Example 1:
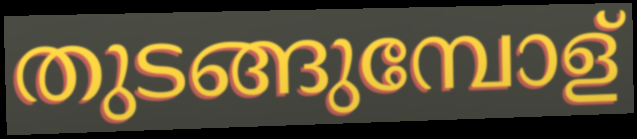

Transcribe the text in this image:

തുടങ്ങുമ്പോള്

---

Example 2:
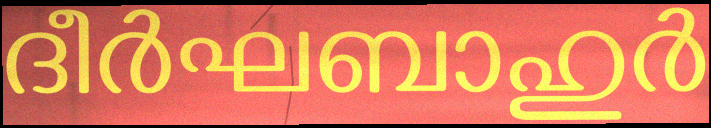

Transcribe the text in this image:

ദീർഘബാഹുർ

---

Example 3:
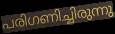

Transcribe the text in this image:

പരിഗണിച്ചിരുന്നു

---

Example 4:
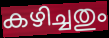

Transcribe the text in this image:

കഴിച്ചതും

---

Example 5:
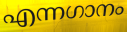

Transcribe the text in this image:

എന്നഗാനം